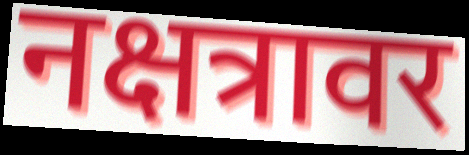
नक्षत्रावर